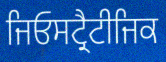
ਜਿਓਸਟ੍ਰੈਟੀਜਿਕ